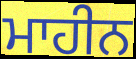
ਮਾਹੀਨ